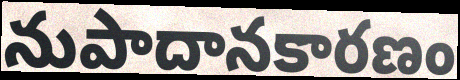
నుపాదానకారణం